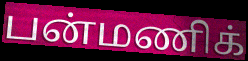
பன்மணிக்